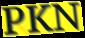
PKN